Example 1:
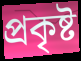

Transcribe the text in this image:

প্ৰকৃষ্ট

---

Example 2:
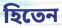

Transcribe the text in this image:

হিতেন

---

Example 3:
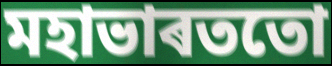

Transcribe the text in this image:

মহাভাৰততো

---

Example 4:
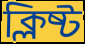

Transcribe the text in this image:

ক্লিষ্ট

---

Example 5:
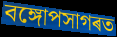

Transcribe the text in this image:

বঙ্গোপসাগৰত